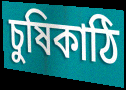
চুষিকাঠি